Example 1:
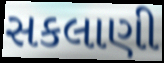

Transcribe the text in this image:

સકલાણી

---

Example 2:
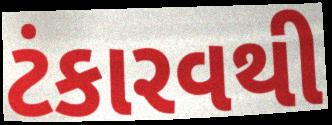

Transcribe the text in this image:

ટંકારવથી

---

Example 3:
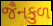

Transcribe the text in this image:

જૈનકુળ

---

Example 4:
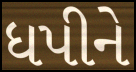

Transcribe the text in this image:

ધપીને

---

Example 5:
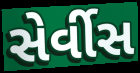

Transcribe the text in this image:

સેર્વીસ